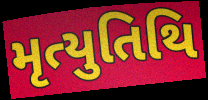
મૃત્યુતિથિ